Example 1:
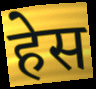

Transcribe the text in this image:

हेस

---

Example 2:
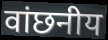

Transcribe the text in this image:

वांछनीय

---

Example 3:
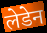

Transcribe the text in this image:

लेडेन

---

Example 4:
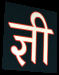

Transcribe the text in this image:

ज्ञी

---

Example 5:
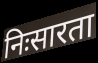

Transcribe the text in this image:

निःसारता